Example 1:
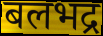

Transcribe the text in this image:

बलभद्र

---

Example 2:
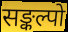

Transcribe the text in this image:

सङ्कल्पो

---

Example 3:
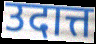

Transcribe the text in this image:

उदात्त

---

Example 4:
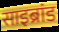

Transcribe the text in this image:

साइब्रांड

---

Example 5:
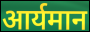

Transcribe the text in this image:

आर्यमान